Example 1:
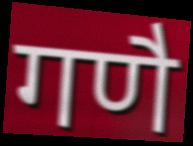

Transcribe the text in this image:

गणै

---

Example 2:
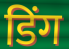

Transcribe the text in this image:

डिंग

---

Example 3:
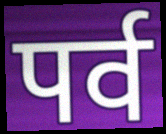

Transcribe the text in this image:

पर्व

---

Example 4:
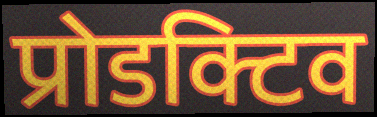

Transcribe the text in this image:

प्रोडक्टिव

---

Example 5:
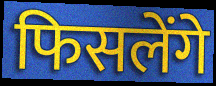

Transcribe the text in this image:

फिसलेंगे